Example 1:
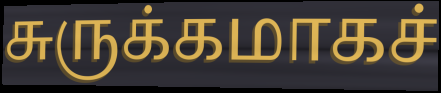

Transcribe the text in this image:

சுருக்கமாகச்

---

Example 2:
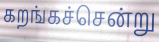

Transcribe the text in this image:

கறங்கச்சென்று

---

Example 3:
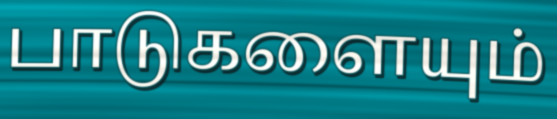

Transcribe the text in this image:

பாடுகளையும்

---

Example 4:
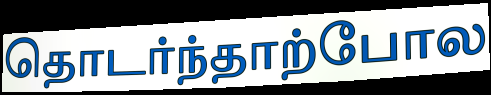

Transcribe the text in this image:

தொடர்ந்தாற்போல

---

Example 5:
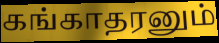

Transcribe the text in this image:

கங்காதரனும்